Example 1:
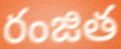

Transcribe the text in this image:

రంజిత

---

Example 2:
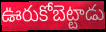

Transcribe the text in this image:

ఊరుకోబెట్టాడు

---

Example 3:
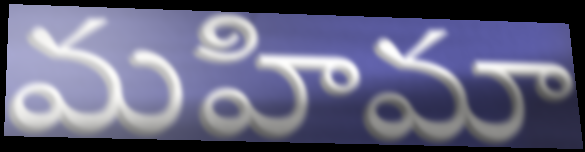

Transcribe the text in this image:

మహిమా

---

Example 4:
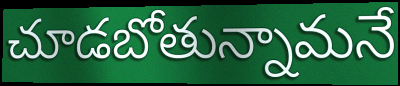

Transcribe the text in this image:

చూడబోతున్నామనే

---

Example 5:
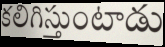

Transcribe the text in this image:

కలిగిస్తుంటాడు